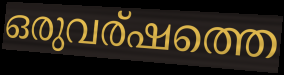
ഒരുവര്ഷത്തെ